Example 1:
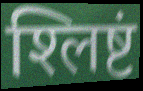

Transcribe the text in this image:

श्लिष्टं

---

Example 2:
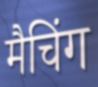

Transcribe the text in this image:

मैचिंग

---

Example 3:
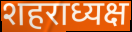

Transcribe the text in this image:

शहराध्यक्ष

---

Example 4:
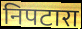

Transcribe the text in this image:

निपटारा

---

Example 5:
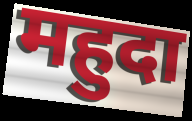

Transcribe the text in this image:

महुदा